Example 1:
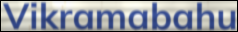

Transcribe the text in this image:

Vikramabahu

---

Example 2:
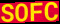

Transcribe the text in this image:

SOFC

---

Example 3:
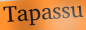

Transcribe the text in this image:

Tapassu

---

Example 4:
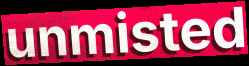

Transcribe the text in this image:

unmisted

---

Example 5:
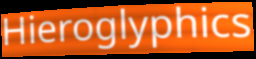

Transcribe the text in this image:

Hieroglyphics